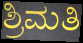
ಶ್ರಿಮತಿ